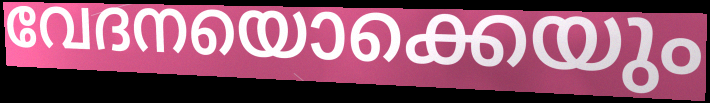
വേദനയൊക്കെയും